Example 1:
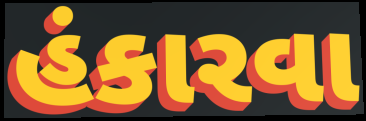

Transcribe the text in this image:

હંકારવા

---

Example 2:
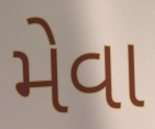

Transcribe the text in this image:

મેવા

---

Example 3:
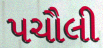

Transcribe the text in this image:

પચૌલી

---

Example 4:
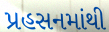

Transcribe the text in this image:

પ્રહસનમાંથી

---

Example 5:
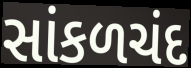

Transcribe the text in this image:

સાંકળચંદ